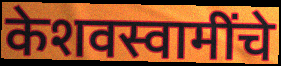
केशवस्वामींचे